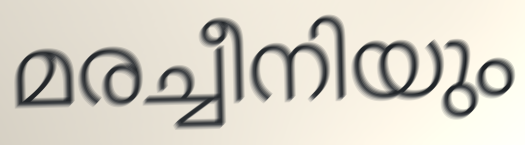
മരച്ചീനിയും